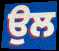
ਉਲ